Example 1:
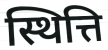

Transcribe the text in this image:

स्थित्ति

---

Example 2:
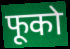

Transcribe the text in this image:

फूको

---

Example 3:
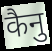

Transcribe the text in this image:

कैनु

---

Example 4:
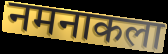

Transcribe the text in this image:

नमनाकला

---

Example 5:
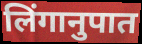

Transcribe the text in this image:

लिंगानुपात